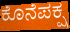
ಕೊನೆಪಕ್ಷ